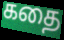
கதை